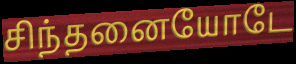
சிந்தனையோடே